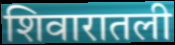
शिवारातली